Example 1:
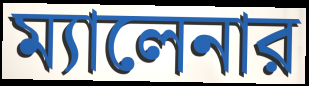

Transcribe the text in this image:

ম্যালেনার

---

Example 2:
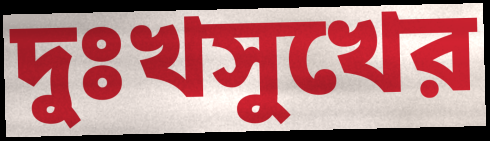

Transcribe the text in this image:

দুঃখসুখের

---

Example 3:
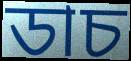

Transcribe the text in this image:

ডাচ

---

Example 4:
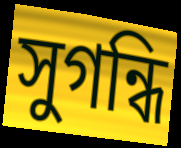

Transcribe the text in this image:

সুগন্ধি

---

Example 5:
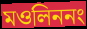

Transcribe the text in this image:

মওলিননং